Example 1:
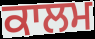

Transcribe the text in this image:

ਕਾਲਮ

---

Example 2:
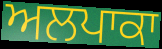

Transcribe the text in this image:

ਅਲਪਾਕਾ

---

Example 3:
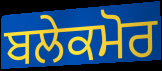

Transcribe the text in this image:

ਬਲੇਕਮੋਰ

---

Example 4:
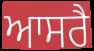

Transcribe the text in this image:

ਆਸਰੈ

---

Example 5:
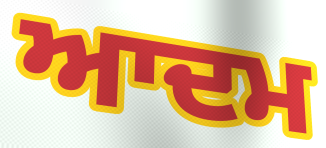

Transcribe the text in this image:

ਆਦਮ